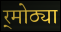
र्मोठ्या